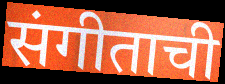
संगीताची